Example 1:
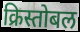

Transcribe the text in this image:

क्रिस्तोबल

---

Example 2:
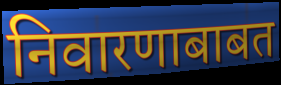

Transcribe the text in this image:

निवारणाबाबत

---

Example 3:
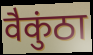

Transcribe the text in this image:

वैकुंठा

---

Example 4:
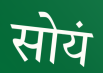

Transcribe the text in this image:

सोयं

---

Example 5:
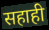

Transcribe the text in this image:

सहाही